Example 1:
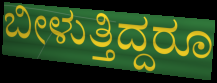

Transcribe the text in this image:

ಬೀಳುತ್ತಿದ್ದರೂ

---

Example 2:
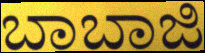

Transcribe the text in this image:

ಬಾಬಾಜಿ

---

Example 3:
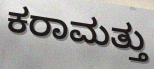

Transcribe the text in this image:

ಕರಾಮತ್ತು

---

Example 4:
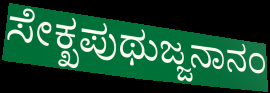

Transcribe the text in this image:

ಸೇಕ್ಖಪುಥುಜ್ಜನಾನಂ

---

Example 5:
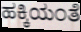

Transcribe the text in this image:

ಹಕ್ಕಿಯಂತೆ